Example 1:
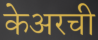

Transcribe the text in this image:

केअरची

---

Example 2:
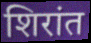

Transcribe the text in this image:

शिरांत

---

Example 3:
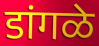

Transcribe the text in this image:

डांगळे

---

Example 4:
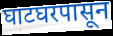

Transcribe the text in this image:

घाटघरपासून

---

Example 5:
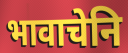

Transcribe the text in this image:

भावाचेनि